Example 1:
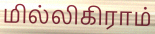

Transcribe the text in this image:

மில்லிகிராம்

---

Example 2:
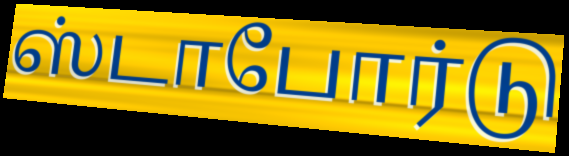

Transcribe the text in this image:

ஸ்டாபோர்டு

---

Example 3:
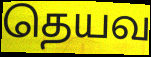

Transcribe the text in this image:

தெயவ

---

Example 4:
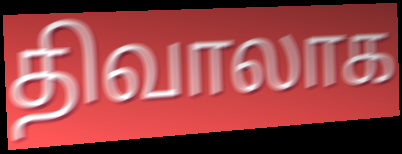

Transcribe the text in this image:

திவாலாக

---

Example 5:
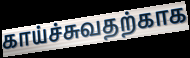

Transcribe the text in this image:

காய்ச்சுவதற்காக